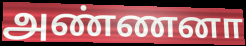
அண்ணனா